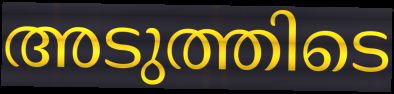
അടുത്തിടെ